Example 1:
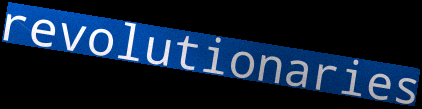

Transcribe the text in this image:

revolutionaries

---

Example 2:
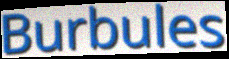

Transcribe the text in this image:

Burbules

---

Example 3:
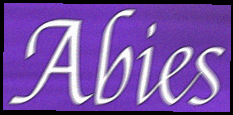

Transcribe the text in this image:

Abies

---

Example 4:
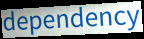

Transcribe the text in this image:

dependency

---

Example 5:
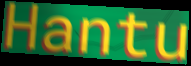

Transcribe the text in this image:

Hantu